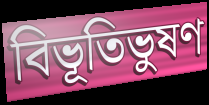
বিভূতিভুষণ